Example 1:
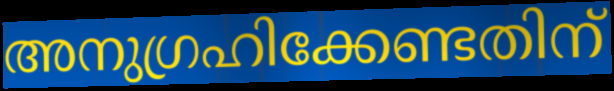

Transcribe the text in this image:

അനുഗ്രഹിക്കേണ്ടതിന്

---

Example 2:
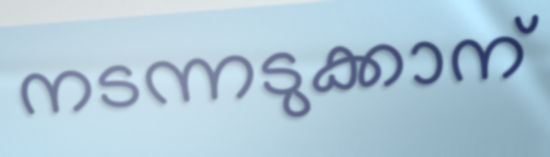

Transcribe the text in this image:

നടന്നടുക്കാന്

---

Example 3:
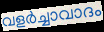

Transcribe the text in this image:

വളർച്ചാവാദം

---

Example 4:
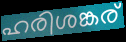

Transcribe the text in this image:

ഹരിശങ്കര്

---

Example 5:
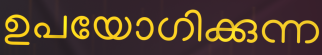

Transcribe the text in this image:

ഉപയോഗിക്കുന്ന